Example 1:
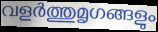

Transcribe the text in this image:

വളർത്തുമൃഗങ്ങളും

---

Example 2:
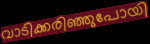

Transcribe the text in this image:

വാടിക്കരിഞ്ഞുപോയി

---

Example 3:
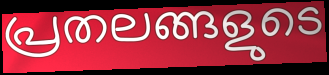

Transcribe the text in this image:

പ്രതലങ്ങളുടെ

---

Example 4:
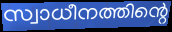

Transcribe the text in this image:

സ്വാധീനത്തിന്റെ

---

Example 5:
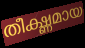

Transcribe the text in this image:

തീക്ഷ്ണമായ